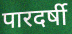
पारदर्षी